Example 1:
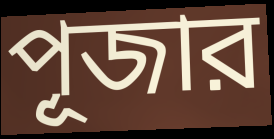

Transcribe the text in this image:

পূজার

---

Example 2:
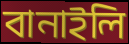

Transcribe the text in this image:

বানাইলি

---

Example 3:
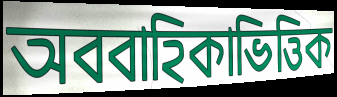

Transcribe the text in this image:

অববাহিকাভিত্তিক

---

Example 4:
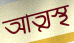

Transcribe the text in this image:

আত্মস্থ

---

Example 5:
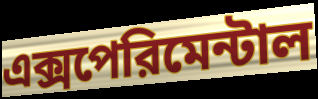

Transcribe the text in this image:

এক্সপেরিমেন্টাল